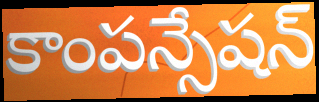
కాంపన్సేషన్